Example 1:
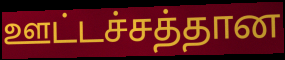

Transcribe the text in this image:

ஊட்டச்சத்தான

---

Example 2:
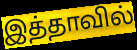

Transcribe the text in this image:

இத்தாவில்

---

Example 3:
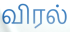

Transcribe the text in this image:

விரல்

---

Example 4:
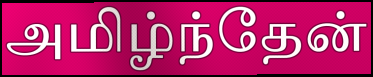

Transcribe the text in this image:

அமிழ்ந்தேன்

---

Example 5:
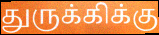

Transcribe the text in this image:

துருக்கிக்கு